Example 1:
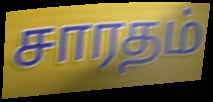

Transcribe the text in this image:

சாரதம்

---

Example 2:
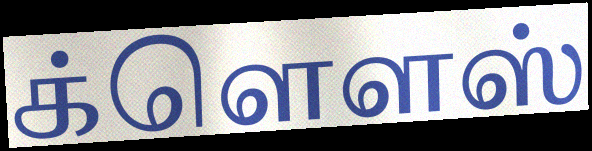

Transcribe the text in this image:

க்ளௌஸ்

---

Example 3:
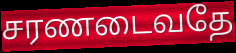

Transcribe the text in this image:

சரணடைவதே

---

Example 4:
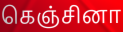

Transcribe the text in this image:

கெஞ்சினா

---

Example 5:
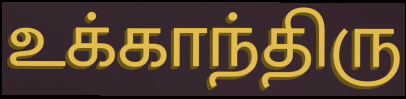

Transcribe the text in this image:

உக்காந்திரு